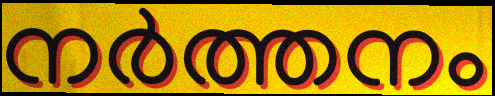
നർത്തനം